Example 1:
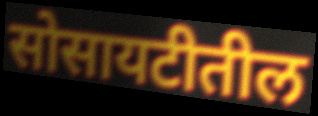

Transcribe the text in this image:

सोसायटीतील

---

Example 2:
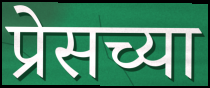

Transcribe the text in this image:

प्रेसच्या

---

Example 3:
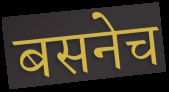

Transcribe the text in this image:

बसनेच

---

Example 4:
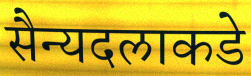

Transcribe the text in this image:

सैन्यदलाकडे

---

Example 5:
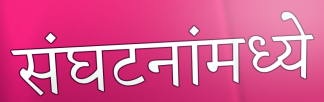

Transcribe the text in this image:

संघटनांमध्ये